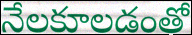
నేలకూలడంతో